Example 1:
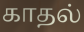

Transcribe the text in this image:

காதல்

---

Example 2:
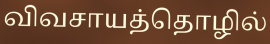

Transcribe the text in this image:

விவசாயத்தொழில்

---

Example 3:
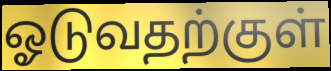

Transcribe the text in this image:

ஓடுவதற்குள்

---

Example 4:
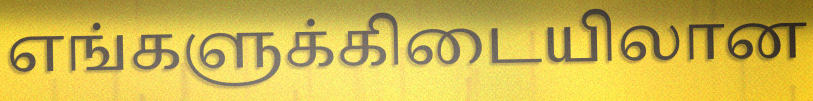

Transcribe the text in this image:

எங்களுக்கிடையிலான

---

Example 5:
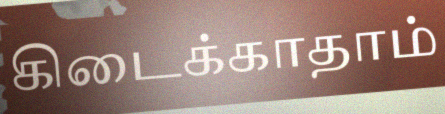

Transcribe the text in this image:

கிடைக்காதாம்